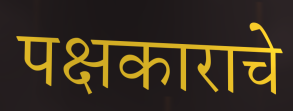
पक्षकाराचे